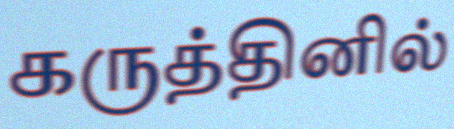
கருத்தினில்